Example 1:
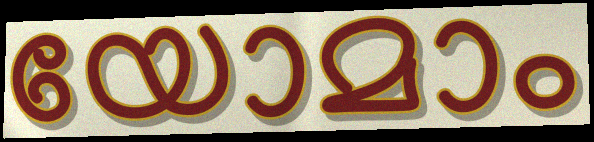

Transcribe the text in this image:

യോമാം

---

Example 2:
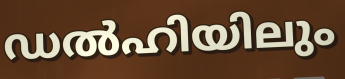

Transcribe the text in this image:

ഡൽഹിയിലും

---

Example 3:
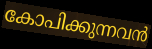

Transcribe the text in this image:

കോപിക്കുന്നവൻ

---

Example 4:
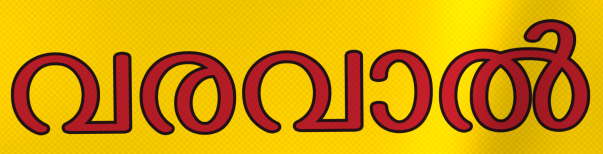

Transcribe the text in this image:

വരവാൽ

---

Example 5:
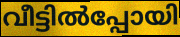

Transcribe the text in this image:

വീട്ടിൽപ്പോയി